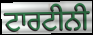
ਟਾਰਟੀਨੀ